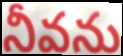
నీవను